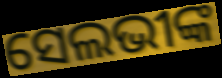
ସେଲଭୀଙ୍କ